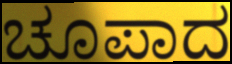
ಚೂಪಾದ